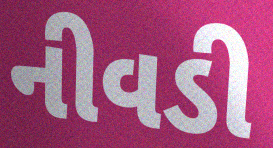
નીવડી